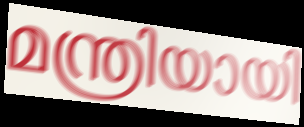
മന്ത്രിയായി